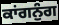
ਕਾਂਗਨੁੰਗ